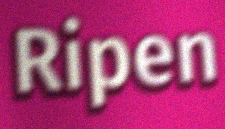
Ripen